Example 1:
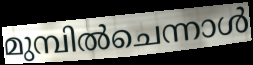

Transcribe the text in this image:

മുമ്പിൽചെന്നാൾ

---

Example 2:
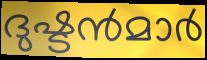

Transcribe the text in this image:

ദുഷ്ടൻമാർ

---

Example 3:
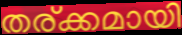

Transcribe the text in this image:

തര്ക്കമായി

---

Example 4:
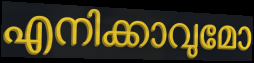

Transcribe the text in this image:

എനിക്കാവുമോ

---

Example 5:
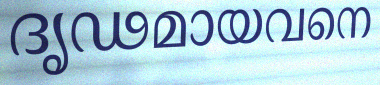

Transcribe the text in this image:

ദൃഢമായവനെ